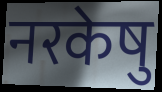
नरकेषु